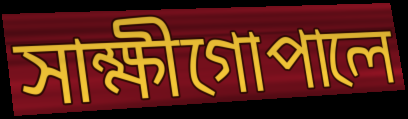
সাক্ষীগোপালে